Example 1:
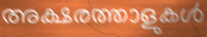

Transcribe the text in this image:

അക്ഷരത്താളുകൾ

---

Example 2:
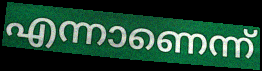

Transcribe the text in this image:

എന്നാണെന്ന്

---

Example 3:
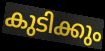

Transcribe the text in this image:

കുടിക്കും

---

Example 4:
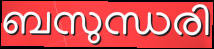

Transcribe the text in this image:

ബസുന്ധരി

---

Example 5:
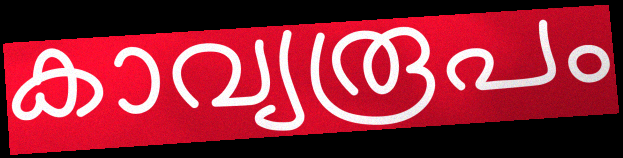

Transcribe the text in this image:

കാവ്യരൂപം